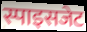
स्पाइसजेट